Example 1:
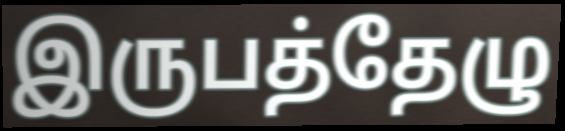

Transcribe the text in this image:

இருபத்தேழு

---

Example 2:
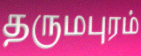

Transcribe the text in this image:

தருமபுரம்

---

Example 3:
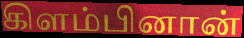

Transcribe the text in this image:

கிளம்பினான்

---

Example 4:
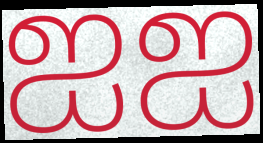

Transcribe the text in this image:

ஐஐ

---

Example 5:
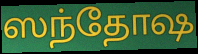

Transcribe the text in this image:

ஸந்தோஷ